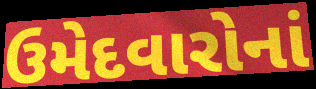
ઉમેદવારોનાં